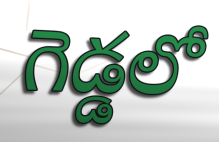
గెడ్డలో